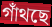
গাঁথছে